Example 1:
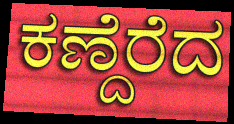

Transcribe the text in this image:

ಕಣ್ದೆರೆದ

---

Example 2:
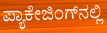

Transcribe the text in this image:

ಪ್ಯಾಕೇಜಿಂಗ್‌ನಲ್ಲಿ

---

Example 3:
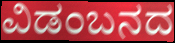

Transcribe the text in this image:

ವಿಡಂಬನದ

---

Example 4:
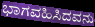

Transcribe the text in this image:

ಭಾಗವಹಿಸಿದವನು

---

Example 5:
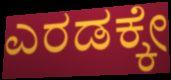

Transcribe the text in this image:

ಎರಡಕ್ಕೇ